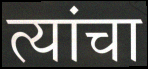
त्यांचा